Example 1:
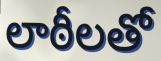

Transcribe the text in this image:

లాఠీలతో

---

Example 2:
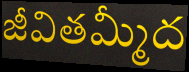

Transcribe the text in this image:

జీవితమ్మీద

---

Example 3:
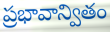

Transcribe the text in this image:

ప్రభావాన్వితం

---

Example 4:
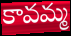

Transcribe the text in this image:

కావమ్మ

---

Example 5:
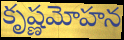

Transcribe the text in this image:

కృష్ణమోహన